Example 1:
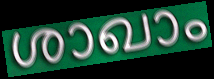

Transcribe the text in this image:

ശാഖാം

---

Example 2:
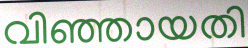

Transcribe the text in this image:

വിഞ്ഞായതി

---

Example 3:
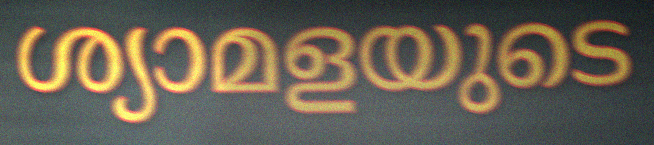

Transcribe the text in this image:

ശ്യാമളയുടെ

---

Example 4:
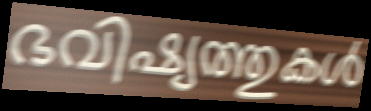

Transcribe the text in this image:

ഭവിഷ്യത്തുകൾ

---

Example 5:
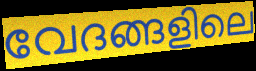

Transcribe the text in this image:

വേദങ്ങളിലെ